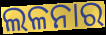
ଲଳନାର